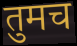
तुमच